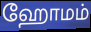
ஹோமம்